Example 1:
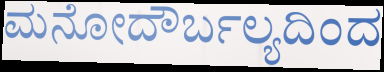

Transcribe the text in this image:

ಮನೋದೌರ್ಬಲ್ಯದಿಂದ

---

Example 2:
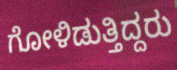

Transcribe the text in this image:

ಗೋಳಿಡುತ್ತಿದ್ದರು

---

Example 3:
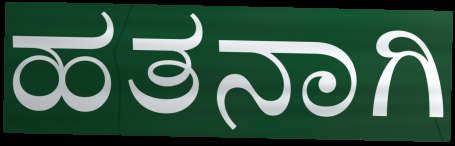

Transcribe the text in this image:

ಹತನಾಗಿ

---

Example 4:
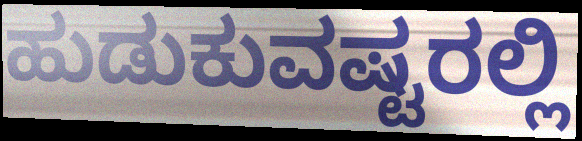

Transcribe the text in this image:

ಹುಡುಕುವಷ್ಟರಲ್ಲಿ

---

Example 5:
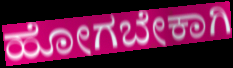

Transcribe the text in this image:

ಹೋಗಬೇಕಾಗಿ